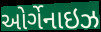
ઓર્ગેનાઇઝ